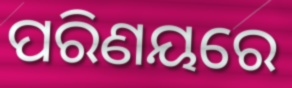
ପରିଣୟରେ